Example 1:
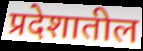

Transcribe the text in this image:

प्रदेशातील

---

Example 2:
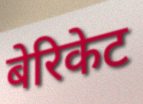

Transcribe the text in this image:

बेरिकेट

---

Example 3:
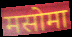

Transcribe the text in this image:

मसोमा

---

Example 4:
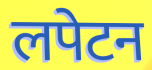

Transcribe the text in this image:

लपेटन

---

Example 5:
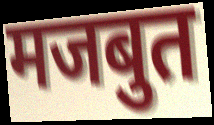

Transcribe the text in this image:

मजबुत